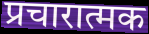
प्रचारात्मक